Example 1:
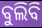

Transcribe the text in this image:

ବୁଲିବି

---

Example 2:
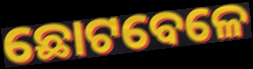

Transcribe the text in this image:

ଛୋଟବେଳେ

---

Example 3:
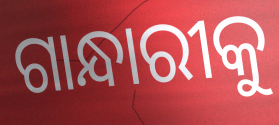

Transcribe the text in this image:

ଗାନ୍ଧାରୀକୁ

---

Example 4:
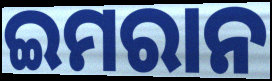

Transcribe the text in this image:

ଇମରାନ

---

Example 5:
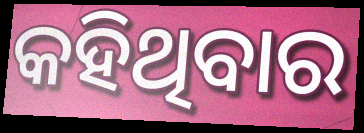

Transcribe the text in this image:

କହିଥିବାର